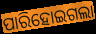
ପାରିହୋଇଗଲା